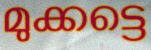
മുക്കട്ടെ